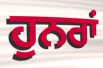
ਹੁਨਰਾਂ